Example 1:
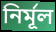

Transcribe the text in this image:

নিৰ্মূল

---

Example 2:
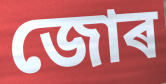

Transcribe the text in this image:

জোৰ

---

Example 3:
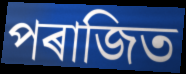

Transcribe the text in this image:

পৰাজিত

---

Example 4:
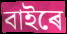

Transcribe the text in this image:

বাইৰে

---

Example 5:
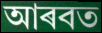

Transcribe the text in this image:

আৰবত